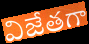
విజేతగా